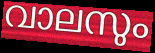
വാലസും